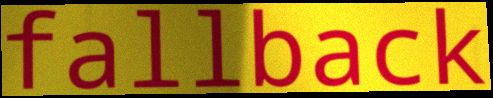
fallback